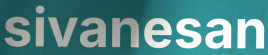
sivanesan